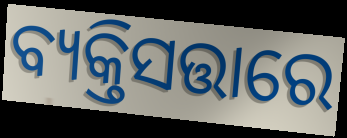
ବ୍ୟକ୍ତିସତ୍ତାରେ